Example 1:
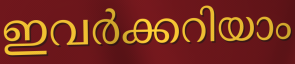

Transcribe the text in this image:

ഇവർക്കറിയാം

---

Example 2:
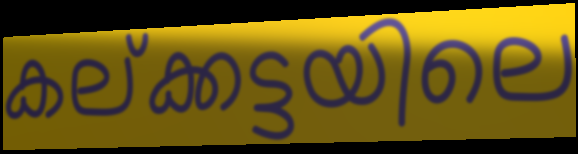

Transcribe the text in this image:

കല്ക്കട്ടയിലെ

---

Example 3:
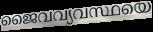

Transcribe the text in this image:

ജൈവവ്യവസ്ഥയെ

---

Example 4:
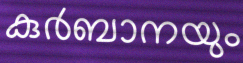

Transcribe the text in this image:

കുർബാനയും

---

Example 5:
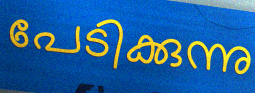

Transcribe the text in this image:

പേടിക്കുന്നു